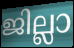
ജില്ലാ